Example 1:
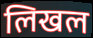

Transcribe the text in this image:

लिखल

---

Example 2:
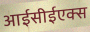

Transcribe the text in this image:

आईसीईएक्स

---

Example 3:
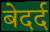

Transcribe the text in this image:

बेदर्द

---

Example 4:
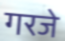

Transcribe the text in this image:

गरजे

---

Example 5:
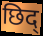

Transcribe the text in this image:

छिद्